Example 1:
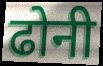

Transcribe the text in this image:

ढोनी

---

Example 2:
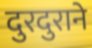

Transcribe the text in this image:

दुरदुराने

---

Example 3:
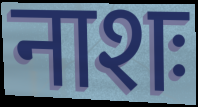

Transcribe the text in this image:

नाशः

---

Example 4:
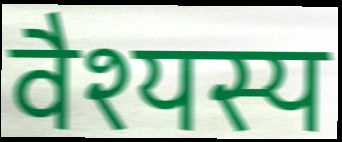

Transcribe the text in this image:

वैश्यस्य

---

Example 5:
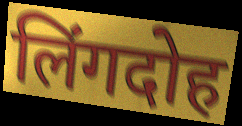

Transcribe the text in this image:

लिंगदोह